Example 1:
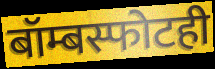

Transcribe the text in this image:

बॉम्बस्फोटही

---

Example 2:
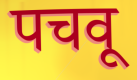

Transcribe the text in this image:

पचवू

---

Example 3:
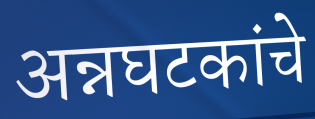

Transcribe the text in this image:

अन्नघटकांचे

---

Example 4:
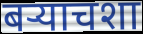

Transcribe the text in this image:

बऱ्याचशा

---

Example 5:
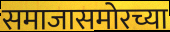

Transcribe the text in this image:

समाजासमोरच्या